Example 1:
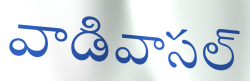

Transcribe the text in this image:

వాడివాసల్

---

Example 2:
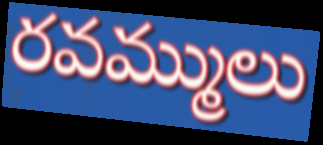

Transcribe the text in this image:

రవమ్ములు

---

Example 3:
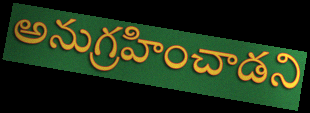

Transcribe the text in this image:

అనుగ్రహించాడని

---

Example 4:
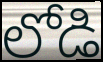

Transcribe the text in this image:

లోడి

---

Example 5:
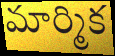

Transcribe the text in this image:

మార్మిక